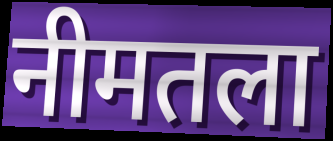
नीमतला